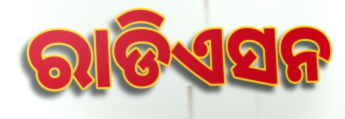
ରାଡିଏସନ